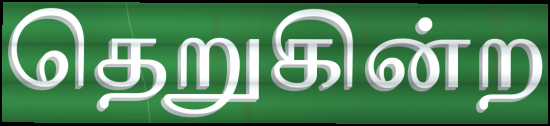
தெறுகின்ற